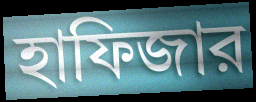
হাফিজার